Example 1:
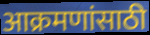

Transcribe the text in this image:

आक्रमणांसाठी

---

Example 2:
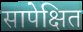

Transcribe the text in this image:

सापेक्षित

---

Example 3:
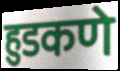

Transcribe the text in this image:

हुडकणे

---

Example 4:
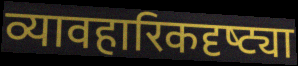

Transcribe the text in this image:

व्यावहारिकदृष्ट्या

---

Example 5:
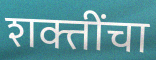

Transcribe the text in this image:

शक्तींचा